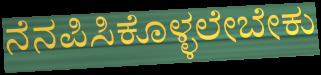
ನೆನಪಿಸಿಕೊಳ್ಳಲೇಬೇಕು